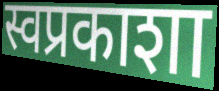
स्वप्रकाशा